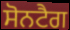
ਸੋਨਟੈਗ